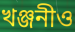
খঞ্জনীও